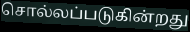
சொல்லப்படுகின்றது